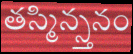
తస్మిన్స్తనం